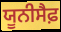
ਯੂਨੀਸੈਫ਼